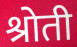
श्रोती